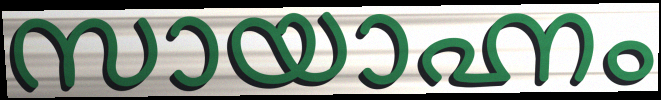
സായാഹ്നം